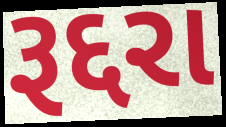
રૂદ્દરા